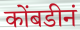
कोंबडीनं